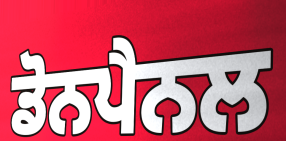
ਡੋਨਪੈਨਲ